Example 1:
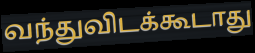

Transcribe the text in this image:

வந்துவிடக்கூடாது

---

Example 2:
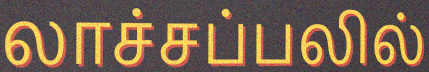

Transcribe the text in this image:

லாச்சப்பலில்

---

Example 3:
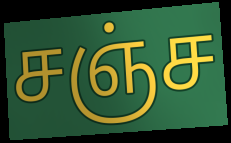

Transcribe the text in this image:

சஞ்ச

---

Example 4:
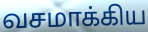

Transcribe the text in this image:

வசமாக்கிய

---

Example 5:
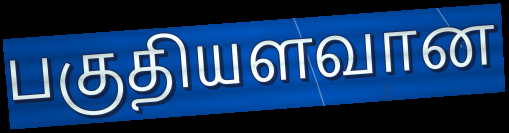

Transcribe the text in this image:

பகுதியளவான